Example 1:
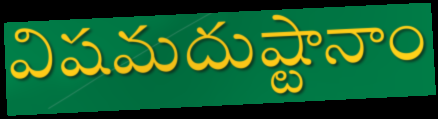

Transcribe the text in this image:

విషమదుష్టానాం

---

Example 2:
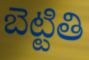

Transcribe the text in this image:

బెట్టితి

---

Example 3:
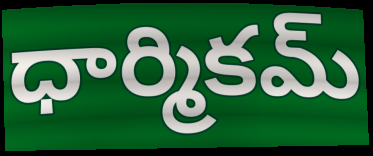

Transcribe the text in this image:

ధార్మికమ్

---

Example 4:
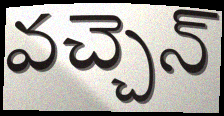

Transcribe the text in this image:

వచ్చెన్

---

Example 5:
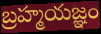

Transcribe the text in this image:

బ్రహ్మయజ్ఞం